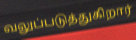
வலுப்படுத்துகிறார்